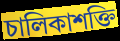
চালিকাশক্তি